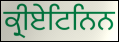
ਕ੍ਰੀਏਟਿਨਿਨ